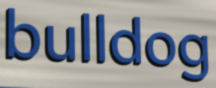
bulldog